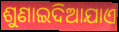
ଶୁଣାଇଦିଆଯାଏ